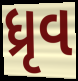
ધ્રૃવ